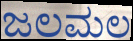
ಜಲಮಲ